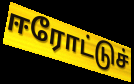
ஈரோட்டுச்